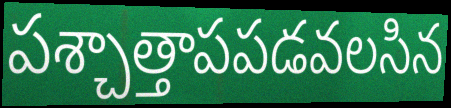
పశ్చాత్తాపపడవలసిన